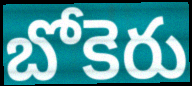
బోకెరు